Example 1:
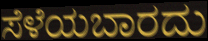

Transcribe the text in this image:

ಸೆಳೆಯಬಾರದು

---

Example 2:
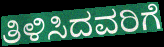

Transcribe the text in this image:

ತಿಳಿಸಿದವರಿಗೆ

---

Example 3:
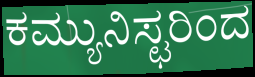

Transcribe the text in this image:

ಕಮ್ಯುನಿಸ್ಟರಿಂದ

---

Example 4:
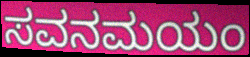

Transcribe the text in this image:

ಸವನಮಯಂ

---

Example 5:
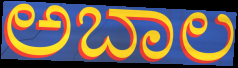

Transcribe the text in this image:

ಅಬಾಲ